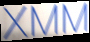
XMM